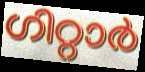
ഗിറ്റാർ